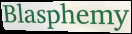
Blasphemy